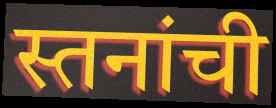
स्तनांची